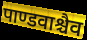
पाण्डवाश्चैव